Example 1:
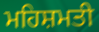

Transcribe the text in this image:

ਮਹਿਸ਼ਮਤੀ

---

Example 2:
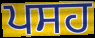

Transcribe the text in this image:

ਪਸਹ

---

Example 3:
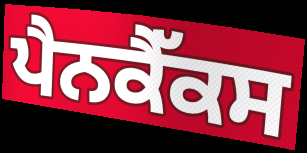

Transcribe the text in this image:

ਪੈਨਕੈੱਕਸ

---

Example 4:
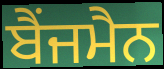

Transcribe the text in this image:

ਬੈਂਜਮੈਨ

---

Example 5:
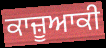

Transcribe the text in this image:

ਕਾਜ਼ੂਆਕੀ